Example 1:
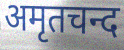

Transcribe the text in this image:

अमृतचन्द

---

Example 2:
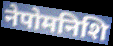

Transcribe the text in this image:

नेपोमनिशि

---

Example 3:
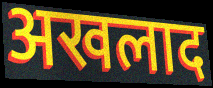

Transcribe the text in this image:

अखलाद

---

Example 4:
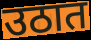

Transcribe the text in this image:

उठात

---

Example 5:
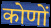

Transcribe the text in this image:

कोणों